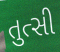
તુત્સી